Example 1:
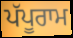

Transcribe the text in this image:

ਪੱਪੂਰਾਮ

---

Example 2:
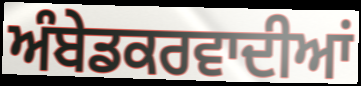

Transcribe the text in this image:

ਅੰਬੇਡਕਰਵਾਦੀਆਂ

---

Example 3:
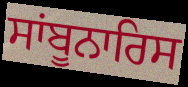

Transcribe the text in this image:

ਸਾਂਬੂਨਾਰਿਸ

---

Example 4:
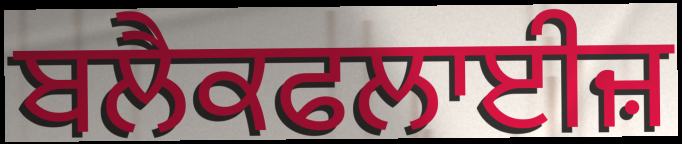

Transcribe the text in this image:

ਬਲੈਕਫਲਾਈਜ਼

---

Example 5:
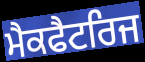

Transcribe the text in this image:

ਮੈਕਫੈਟਰਿਜ